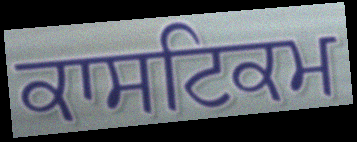
ਕਾਸਟਿਕਮ